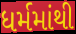
ધર્મમાંથી